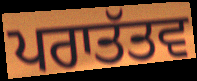
ਪਰਾਤੱਤਵ